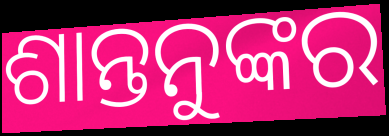
ଶାନ୍ତନୁଙ୍କର